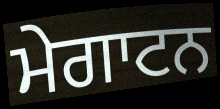
ਮੇਗਾਟਨ